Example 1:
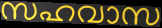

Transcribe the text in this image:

സഹവാസ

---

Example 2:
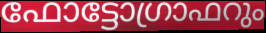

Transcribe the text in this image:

ഫോട്ടോഗ്രാഫറും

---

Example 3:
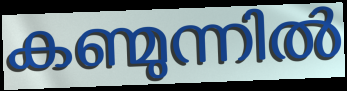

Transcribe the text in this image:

കണ്മുന്നിൽ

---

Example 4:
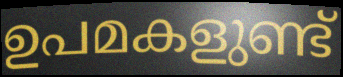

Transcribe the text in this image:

ഉപമകളുണ്ട്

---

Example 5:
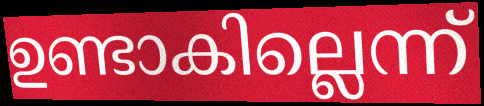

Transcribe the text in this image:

ഉണ്ടാകില്ലെന്ന്